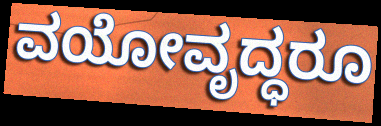
ವಯೋವೃದ್ಧರೂ